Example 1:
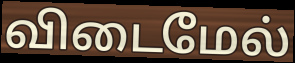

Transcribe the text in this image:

விடைமேல்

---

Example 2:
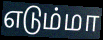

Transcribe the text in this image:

எடும்மா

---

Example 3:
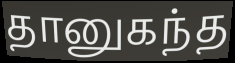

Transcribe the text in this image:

தானுகந்த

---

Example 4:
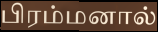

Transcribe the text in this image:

பிரம்மனால்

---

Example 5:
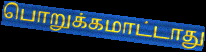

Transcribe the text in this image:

பொறுக்கமாட்டாது